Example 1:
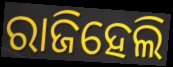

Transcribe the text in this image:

ରାଜିହେଲି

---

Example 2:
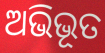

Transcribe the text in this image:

ଅଭିଭୂତ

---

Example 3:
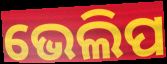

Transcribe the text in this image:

ଭେଲିପ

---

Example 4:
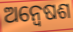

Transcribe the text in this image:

ଅନ୍ୱେଷଶ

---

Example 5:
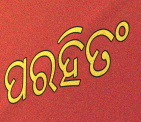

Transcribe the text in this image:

ପରହିତଂ